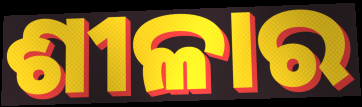
ଶୀଳାର